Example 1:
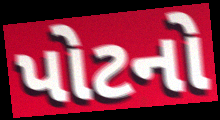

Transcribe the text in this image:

પોટનો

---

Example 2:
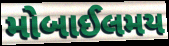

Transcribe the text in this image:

મોબાઈલમય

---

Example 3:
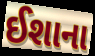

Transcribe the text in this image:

ઈશાના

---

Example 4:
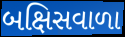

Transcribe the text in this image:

બક્ષિસવાળા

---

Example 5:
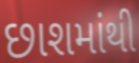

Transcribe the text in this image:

છાશમાંથી